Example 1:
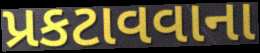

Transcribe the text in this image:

પ્રકટાવવાના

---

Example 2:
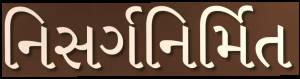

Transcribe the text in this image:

નિસર્ગનિર્મિત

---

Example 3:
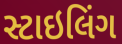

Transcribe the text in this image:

સ્ટાઇલિંગ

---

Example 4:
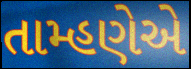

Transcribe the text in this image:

તામ્હણેએ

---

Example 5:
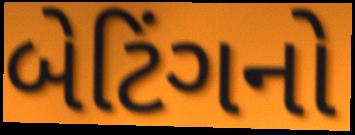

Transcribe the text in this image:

બેટિંગનો